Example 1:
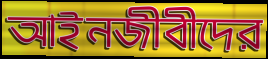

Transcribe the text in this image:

আইনজীবীদের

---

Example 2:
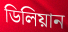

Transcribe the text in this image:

ডিলিয়ান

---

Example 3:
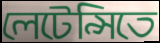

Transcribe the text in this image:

লেটেন্সিতে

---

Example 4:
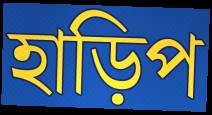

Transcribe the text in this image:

হাড়িপ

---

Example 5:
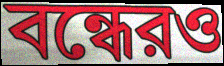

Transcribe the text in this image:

বন্ধেরও